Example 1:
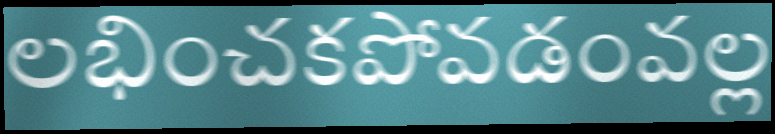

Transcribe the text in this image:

లభించకపోవడంవల్ల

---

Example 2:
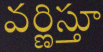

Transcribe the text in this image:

వర్ణిస్తూ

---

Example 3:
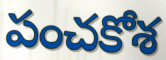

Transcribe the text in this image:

పంచకోశ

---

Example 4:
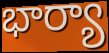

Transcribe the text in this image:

భార్యా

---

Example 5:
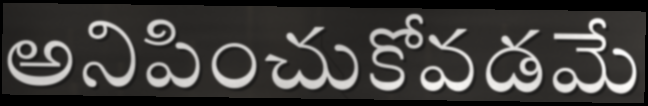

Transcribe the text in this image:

అనిపించుకోవడమే